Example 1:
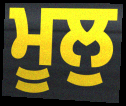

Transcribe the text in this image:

ਮੂਲੁ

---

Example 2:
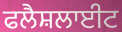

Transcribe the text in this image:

ਫਲੈਸ਼ਲਾਈਟ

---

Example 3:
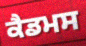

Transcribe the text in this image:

ਕੈਡਮਸ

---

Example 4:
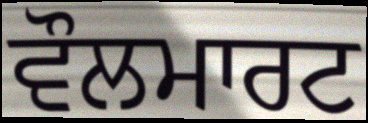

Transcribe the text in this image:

ਵੌਲਮਾਰਟ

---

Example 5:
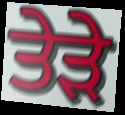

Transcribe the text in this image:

ਤੇੜੇ